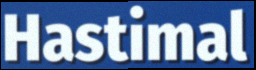
Hastimal